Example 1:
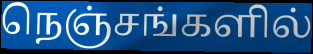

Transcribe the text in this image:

நெஞ்சங்களில்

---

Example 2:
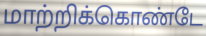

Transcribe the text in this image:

மாற்றிக்கொண்டே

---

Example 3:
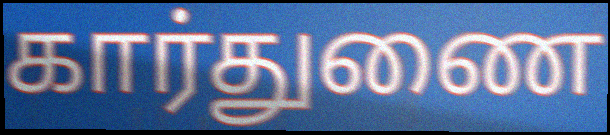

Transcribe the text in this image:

கார்துணை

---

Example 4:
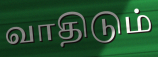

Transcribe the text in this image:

வாதிடும்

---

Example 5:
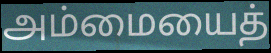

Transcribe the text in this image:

அம்மையைத்